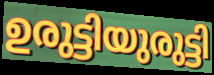
ഉരുട്ടിയുരുട്ടി